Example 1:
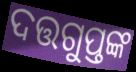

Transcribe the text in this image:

ଦତ୍ତଗୁପ୍ତଙ୍କ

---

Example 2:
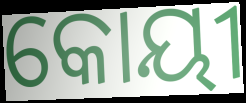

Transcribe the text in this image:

କୋୟୀ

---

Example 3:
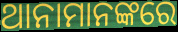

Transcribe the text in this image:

ଥାନାମାନଙ୍କରେ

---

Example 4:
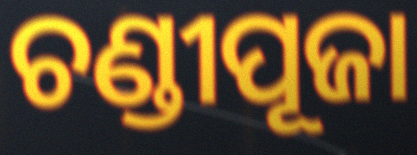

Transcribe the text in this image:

ଚଣ୍ଡୀପୂଜା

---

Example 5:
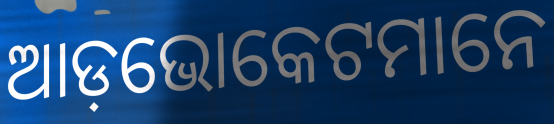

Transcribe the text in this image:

ଆଡ଼ଭୋକେଟମାନେ